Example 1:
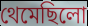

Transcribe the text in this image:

থেমেছিলো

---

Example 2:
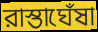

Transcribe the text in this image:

রাস্তাঘেঁষা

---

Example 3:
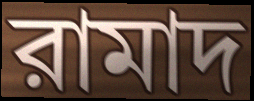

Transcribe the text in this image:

রামাদ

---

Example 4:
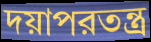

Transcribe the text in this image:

দয়াপরতন্ত্র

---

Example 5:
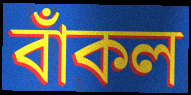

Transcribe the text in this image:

বাঁকল